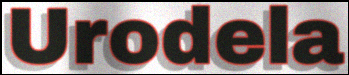
Urodela